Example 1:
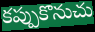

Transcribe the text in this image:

కప్పుకొనుచు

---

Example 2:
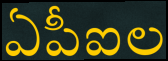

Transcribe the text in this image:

ఏపీఐల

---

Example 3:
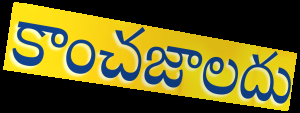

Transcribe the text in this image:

కాంచజాలదు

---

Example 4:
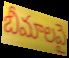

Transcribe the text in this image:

బీమాలపై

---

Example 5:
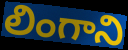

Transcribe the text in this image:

లింగాని